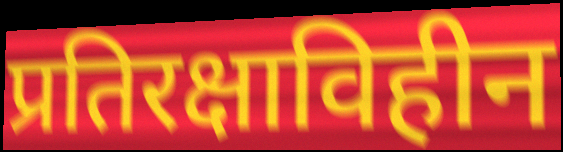
प्रतिरक्षाविहीन